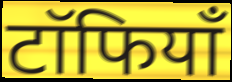
टॉफियाँ